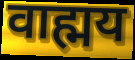
वाह्मय